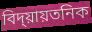
বিদ্য়ায়তনিক